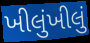
ખીલુંખીલું